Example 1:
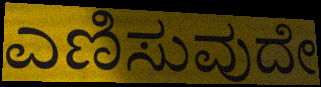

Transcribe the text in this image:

ಎಣಿಸುವುದೇ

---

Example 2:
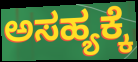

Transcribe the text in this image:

ಅಸಹ್ಯಕ್ಕೆ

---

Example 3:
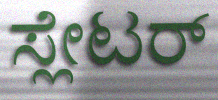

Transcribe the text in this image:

ಸ್ಲೇಟರ್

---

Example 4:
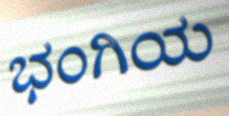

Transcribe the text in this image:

ಭಂಗಿಯ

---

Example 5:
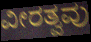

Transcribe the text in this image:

ವೀರತ್ವವು